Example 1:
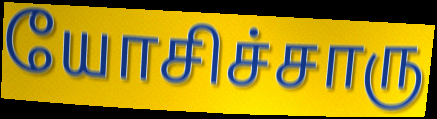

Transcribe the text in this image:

யோசிச்சாரு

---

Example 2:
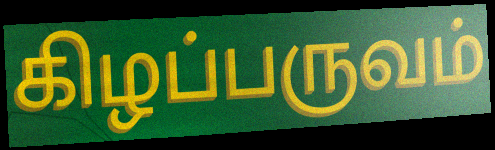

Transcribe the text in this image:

கிழப்பருவம்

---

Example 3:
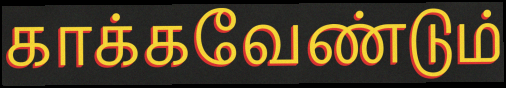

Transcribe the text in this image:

காக்கவேண்டும்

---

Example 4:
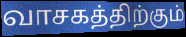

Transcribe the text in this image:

வாசகத்திற்கும்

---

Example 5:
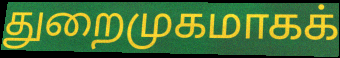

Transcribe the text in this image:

துறைமுகமாகக்